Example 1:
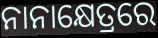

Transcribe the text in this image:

ନାନାକ୍ଷେତ୍ରରେ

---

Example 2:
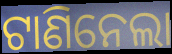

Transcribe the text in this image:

ଟାଣିନେଲା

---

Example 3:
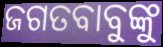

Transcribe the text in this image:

ଜଗତବାବୁଙ୍କୁ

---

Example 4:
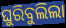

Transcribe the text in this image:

ଘୁରିବୁଲିଲା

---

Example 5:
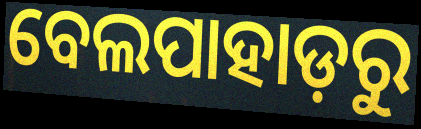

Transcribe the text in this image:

ବେଲପାହାଡ଼ରୁ